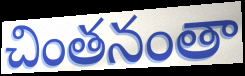
చింతనంతా